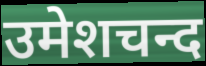
उमेशचन्द